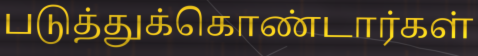
படுத்துக்கொண்டார்கள்